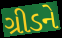
ગ્રીડને